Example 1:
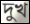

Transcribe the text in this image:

দুখ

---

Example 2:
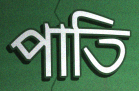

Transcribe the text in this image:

পাতি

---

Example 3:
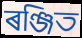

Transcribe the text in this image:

ৰঞ্জিত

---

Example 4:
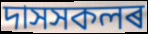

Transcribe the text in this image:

দাসসকলৰ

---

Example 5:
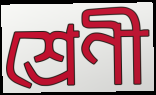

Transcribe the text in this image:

শ্ৰেণী